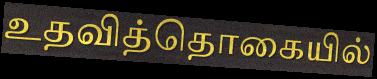
உதவித்தொகையில்